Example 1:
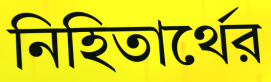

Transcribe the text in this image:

নিহিতার্থের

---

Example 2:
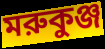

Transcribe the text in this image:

মরুকুঞ্জ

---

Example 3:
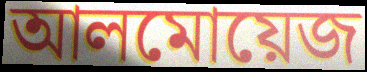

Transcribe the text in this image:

আলমোয়েজ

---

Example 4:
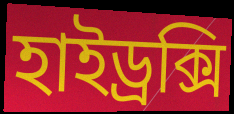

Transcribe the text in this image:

হাইড্রক্সি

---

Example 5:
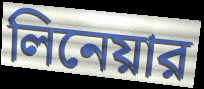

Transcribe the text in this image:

লিনেয়ার